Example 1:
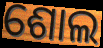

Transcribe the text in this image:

ଶୋଲ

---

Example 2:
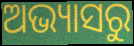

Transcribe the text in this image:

ଅଭ୍ୟାସରୁ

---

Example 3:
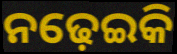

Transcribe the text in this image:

ନଢ଼େଇକି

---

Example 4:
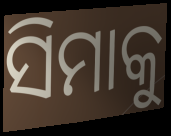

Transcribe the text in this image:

ସିମାକୁ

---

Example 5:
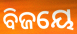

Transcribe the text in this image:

ବିଜୟେ